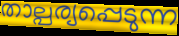
താല്പര്യപ്പെടുന്ന